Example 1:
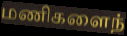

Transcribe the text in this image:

மணிகளைந்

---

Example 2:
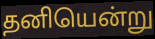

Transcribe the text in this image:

தனியென்று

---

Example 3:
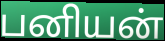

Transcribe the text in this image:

பனியன்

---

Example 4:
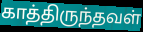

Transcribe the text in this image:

காத்திருந்தவள்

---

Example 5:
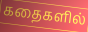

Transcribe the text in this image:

கதைகளில்